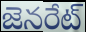
జెనరేట్